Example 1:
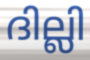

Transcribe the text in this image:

ദില്ലി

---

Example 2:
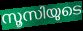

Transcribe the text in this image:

സൂസിയുടെ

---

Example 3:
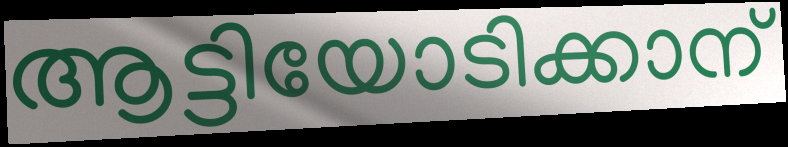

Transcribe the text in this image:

ആട്ടിയോടിക്കാന്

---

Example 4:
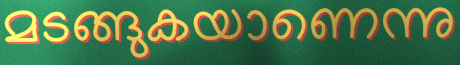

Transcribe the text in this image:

മടങ്ങുകയാണെന്നു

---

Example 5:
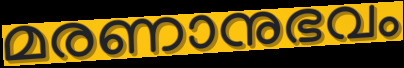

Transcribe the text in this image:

മരണാനുഭവം